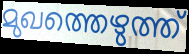
മുഖത്തെഴുത്ത്